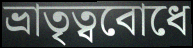
ভ্রাতৃত্ববোধে